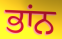
ਭਾਂਨ